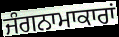
ਜੰਗਨਾਮਾਕਾਰਾਂ